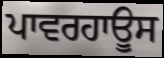
ਪਾਵਰਹਾਊਸ